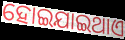
ହୋଇଯାଇଥାଏ